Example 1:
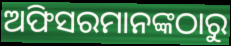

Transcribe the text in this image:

ଅଫିସରମାନଙ୍କଠାରୁ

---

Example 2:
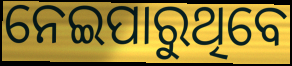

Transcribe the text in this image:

ନେଇପାରୁଥିବେ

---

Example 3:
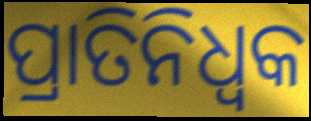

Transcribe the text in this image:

ପ୍ରାତିନିଧ୍ଵକ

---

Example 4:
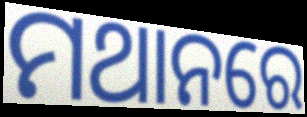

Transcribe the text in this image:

ମଥାନରେ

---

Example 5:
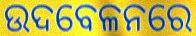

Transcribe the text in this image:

ଉଦବେଳନରେ